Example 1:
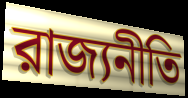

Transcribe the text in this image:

রাজ্যনীতি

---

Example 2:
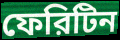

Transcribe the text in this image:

ফেরিটিন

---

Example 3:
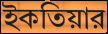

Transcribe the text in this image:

ইকতিয়ার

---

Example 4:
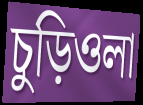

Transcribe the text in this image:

চুড়িওলা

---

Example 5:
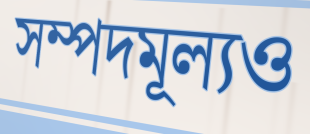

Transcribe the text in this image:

সম্পদমূল্যও